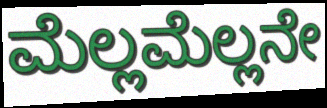
ಮೆಲ್ಲಮೆಲ್ಲನೇ